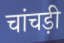
चांचड़ी